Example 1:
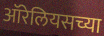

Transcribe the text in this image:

ऑरेलियसच्या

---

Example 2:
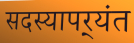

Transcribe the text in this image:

सदस्यापर्यंत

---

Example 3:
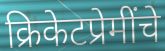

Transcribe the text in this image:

क्रिकेटप्रेमींचे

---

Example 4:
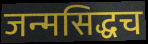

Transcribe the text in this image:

जन्मसिद्धच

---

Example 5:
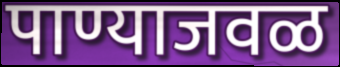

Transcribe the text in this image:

पाण्याजवळ